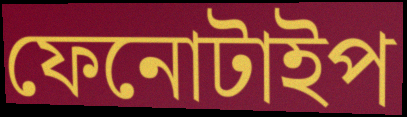
ফেনোটাইপ